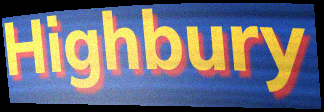
Highbury